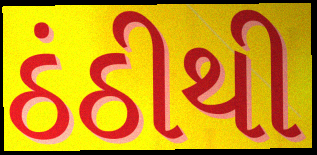
ઠંઠીથી